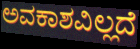
ಅವಕಾಶವಿಲ್ಲದೆ